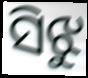
ସିଝୁ